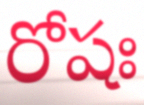
రోషః